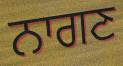
ਨਾਗਣ